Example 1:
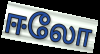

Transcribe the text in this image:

ஈலோ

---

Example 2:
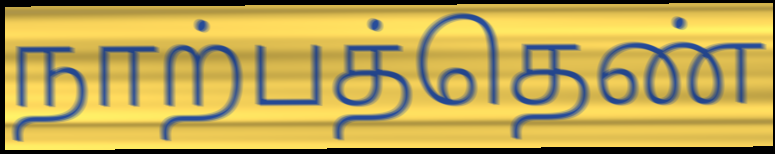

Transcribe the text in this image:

நாற்பத்தெண்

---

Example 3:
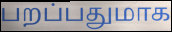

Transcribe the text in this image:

பறப்பதுமாக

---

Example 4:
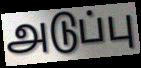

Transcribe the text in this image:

அடுப்பு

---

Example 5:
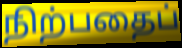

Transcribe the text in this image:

நிற்பதைப்